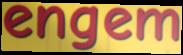
engem